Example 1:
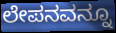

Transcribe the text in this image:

ಲೇಪನವನ್ನೂ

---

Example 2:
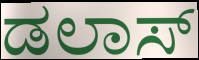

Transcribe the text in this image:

ಡಲಾಸ್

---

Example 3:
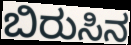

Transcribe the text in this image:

ಬಿರುಸಿನ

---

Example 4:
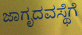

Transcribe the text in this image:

ಜಾಗೃದವಸ್ಥೆಗೆ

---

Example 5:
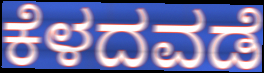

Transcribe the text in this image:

ಕೆಳದವಡೆ